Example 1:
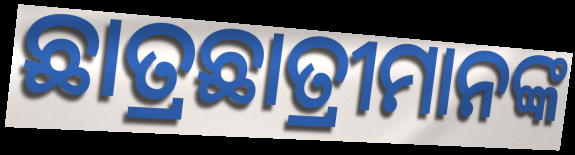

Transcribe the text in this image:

ଛାତ୍ରଛାତ୍ରୀମାନଙ୍କ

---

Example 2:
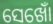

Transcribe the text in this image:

ସେଖୋଁ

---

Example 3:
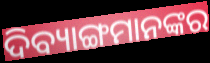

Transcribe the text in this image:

ଦିବ୍ୟାଙ୍ଗମାନଙ୍କର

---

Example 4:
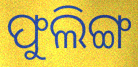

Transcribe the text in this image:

ଫୁଲିଙ୍ଗ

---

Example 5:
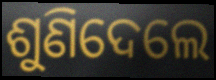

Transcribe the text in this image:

ଶୁଣିଦେଲେ